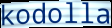
kodolla